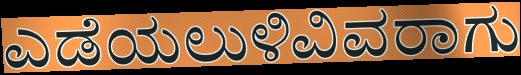
ಎಡೆಯಲುಳಿವಿವರಾಗು